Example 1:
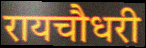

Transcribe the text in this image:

रायचौधरी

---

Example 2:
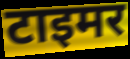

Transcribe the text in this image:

टाइमर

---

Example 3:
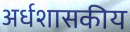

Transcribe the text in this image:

अर्धशासकीय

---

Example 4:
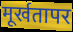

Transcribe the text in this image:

मूर्खतापर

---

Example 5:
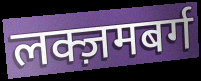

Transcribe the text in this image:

लक्ज़मबर्ग